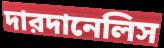
দারদানেলিস